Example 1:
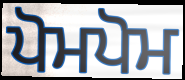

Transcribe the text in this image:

ਪੋਮਪੋਮ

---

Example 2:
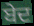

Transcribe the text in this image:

ਬੇਦ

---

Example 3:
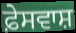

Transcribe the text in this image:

ਫ਼ੇਸਵਾਸ਼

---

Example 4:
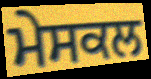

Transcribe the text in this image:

ਮੇਸਕਲ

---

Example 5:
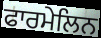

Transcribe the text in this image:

ਫਾਰਮੇਲਿਨ